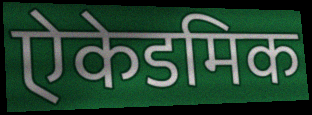
ऐकेडमिक